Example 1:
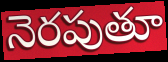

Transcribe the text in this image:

నెరపుతూ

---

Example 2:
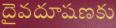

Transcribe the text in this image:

దైవదూషణకు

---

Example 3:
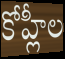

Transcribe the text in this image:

కోహ్లీల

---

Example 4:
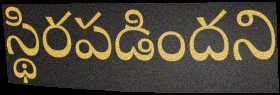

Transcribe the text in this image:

స్థిరపడిందని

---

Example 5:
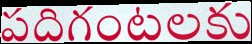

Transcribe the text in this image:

పదిగంటలకు